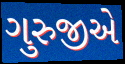
ગુરુજીએ